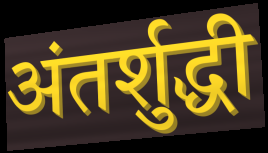
अंतर्शुद्धी